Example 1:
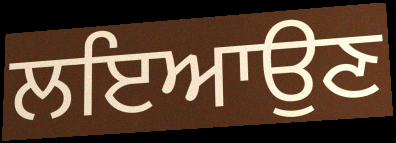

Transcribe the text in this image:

ਲਇਆਉਣ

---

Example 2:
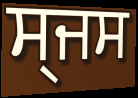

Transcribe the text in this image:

ਸ੍ਜਸ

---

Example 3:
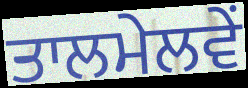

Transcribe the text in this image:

ਤਾਲਮੇਲਵੇਂ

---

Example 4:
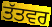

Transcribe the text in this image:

ਤੱਤਵਰ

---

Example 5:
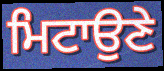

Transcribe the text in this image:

ਮਿਟਾਉਣੇ